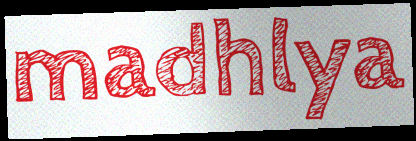
madhlya